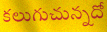
కలుగుచున్నదో